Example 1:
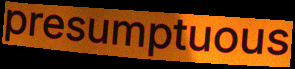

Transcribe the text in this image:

presumptuous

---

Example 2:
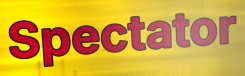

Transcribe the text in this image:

Spectator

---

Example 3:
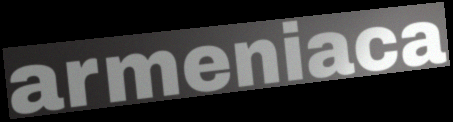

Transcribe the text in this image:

armeniaca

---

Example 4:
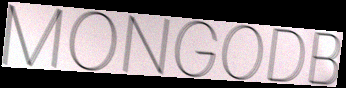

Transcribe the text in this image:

MONGODB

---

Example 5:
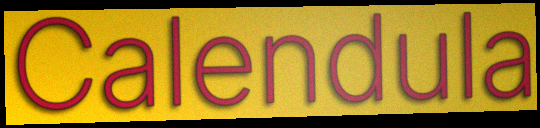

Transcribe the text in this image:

Calendula